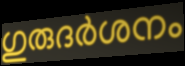
ഗുരുദർശനം